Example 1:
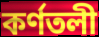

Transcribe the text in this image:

কর্ণতলী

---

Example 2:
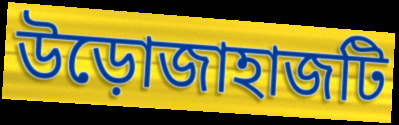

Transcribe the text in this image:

উড়োজাহাজটি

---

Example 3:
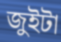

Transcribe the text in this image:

জুইটা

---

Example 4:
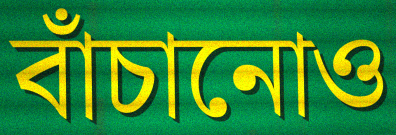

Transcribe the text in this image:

বাঁচানোও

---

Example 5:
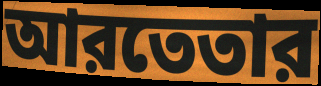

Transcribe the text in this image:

আরতেতার